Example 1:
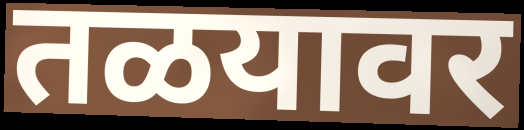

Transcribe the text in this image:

तळयावर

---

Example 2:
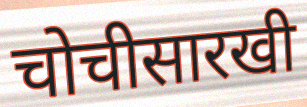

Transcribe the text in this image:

चोचीसारखी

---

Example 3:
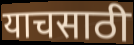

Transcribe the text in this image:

याचसाठी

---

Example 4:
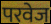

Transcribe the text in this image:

परवेज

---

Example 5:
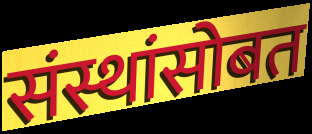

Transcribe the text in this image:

संस्थांसोबत